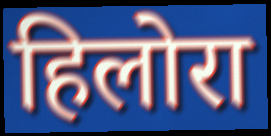
हिलोरा